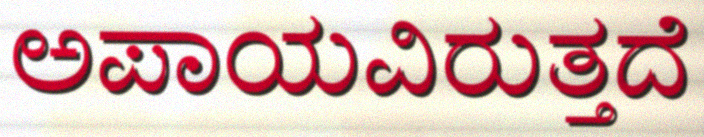
ಅಪಾಯವಿರುತ್ತದೆ